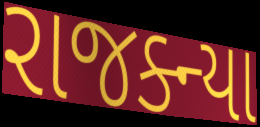
રાજક્ન્યા